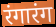
रंगारंग